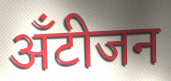
अँटीजन